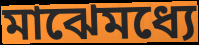
মাঝেমধ্যে